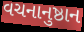
વચનાનુષ્ઠાન